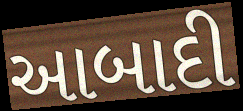
આબાદી